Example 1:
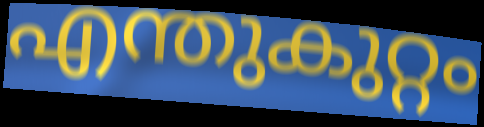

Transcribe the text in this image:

എന്തുകുറ്റം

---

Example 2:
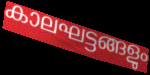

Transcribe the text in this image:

കാലഘട്ടങ്ങളും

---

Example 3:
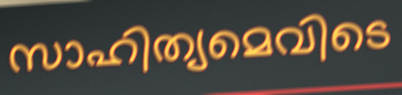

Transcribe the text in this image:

സാഹിത്യമെവിടെ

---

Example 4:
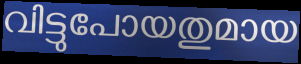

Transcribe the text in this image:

വിട്ടുപോയതുമായ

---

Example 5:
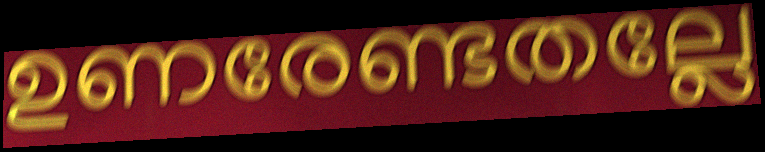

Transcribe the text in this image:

ഉണരേണ്ടതല്ലേ